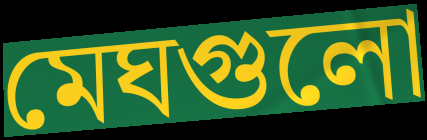
মেঘগুলো